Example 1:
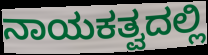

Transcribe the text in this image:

ನಾಯಕತ್ವದಲ್ಲಿ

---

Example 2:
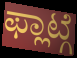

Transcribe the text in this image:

ಫ್ಲಾಟ್ಗೆ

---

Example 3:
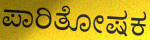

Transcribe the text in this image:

ಪಾರಿತೋಷಕ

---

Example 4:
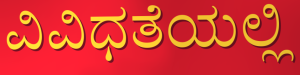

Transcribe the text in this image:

ವಿವಿಧತೆಯಲ್ಲಿ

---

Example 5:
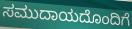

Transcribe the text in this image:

ಸಮುದಾಯದೊಂದಿಗೆ